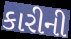
કારીની